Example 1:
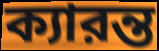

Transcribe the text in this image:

ক্যারন্ত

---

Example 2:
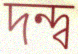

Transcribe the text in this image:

দন্দ্ব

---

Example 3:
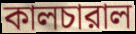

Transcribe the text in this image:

কালচারাল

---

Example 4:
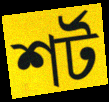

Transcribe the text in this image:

শর্ট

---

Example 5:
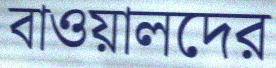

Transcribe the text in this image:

বাওয়ালদের